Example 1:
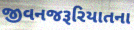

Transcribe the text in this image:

જીવનજરૂરિયાતના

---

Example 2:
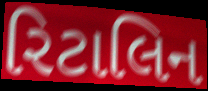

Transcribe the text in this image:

રિટાલિન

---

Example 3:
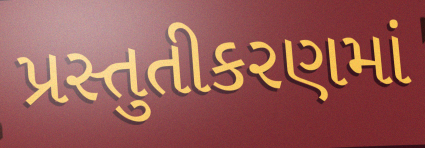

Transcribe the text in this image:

પ્રસ્તુતીકરણમાં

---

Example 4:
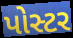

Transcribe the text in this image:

પોસ્ટર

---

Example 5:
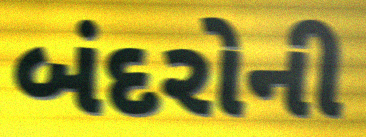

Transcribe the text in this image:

બંદરોની